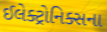
ઈલેક્ટ્રોનિક્સના